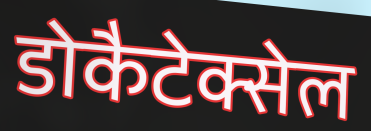
डोकैटेक्सेल